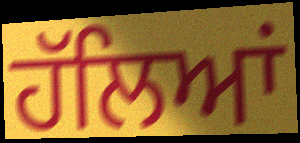
ਹੱਲਿਆਂ